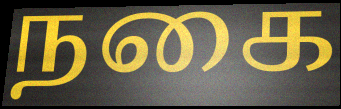
நகை